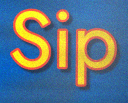
Sip